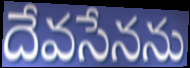
దేవసేనను